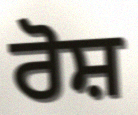
ਰੋਸ਼